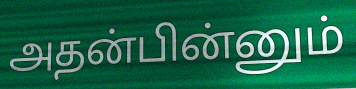
அதன்பின்னும்